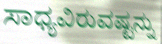
ಸಾಧ್ಯವಿರುವಷ್ಟನ್ನು